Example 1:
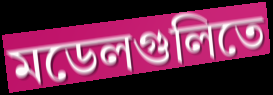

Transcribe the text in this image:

মডেলগুলিতে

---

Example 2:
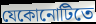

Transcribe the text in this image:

যেকোনোটিতে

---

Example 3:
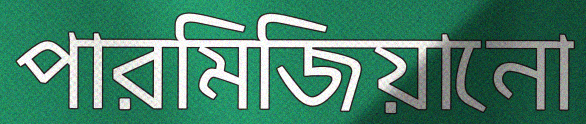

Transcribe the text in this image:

পারমিজিয়ানো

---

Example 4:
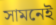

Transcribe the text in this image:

সামনেই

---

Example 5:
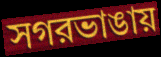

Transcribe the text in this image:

সগরভাঙায়